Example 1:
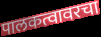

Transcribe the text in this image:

पालकत्वावरचा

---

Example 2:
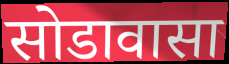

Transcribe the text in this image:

सोडावासा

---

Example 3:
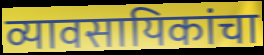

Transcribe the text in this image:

व्यावसायिकांचा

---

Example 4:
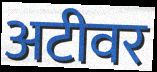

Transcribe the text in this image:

अटीवर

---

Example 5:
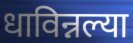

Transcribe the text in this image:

धाविन्नल्या